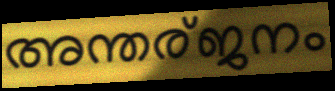
അന്തര്ജനം